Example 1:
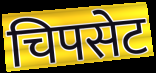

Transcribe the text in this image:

चिपसेट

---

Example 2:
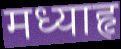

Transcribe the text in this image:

मध्याहृ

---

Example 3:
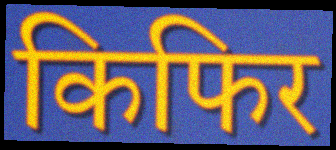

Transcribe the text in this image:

किफिर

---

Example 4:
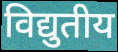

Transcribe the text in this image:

विद्युतीय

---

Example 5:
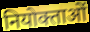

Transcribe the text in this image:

नियोक्ताओं